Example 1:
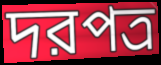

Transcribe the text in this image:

দরপত্র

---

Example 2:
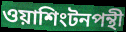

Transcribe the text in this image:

ওয়াশিংটনপন্থী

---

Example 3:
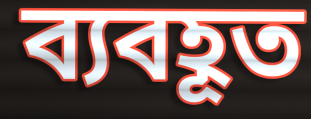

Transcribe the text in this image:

ব্যবহূত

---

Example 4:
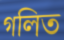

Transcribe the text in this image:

গলিত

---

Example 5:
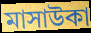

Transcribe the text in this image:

মাসাউকা